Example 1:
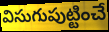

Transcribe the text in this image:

విసుగుపుట్టించే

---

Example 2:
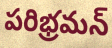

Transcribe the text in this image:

పరిభ్రమన్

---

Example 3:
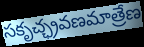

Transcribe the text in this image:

సకృచ్ఛ్రవణమాత్రేణ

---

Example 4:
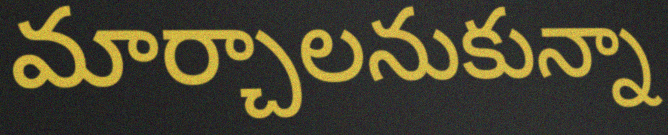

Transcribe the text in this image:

మార్చాలనుకున్నా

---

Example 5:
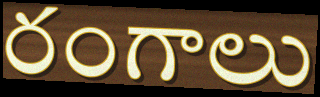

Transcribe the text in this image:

రంగాలు